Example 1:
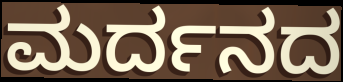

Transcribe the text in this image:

ಮರ್ದನದ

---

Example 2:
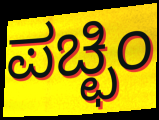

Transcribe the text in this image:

ಪಚ್ಛಿಂ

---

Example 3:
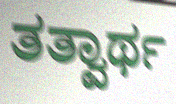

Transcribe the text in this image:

ತತ್ವಾರ್ಥ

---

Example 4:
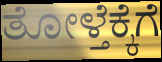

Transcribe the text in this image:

ತೋಳ್ತೆಕ್ಕೆಗೆ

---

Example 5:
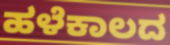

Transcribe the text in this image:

ಹಳೆಕಾಲದ